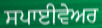
ਸਪਾਈਵੇਅਰ